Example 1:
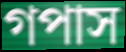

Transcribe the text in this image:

গপাস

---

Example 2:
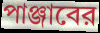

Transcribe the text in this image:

পাঞ্জাবের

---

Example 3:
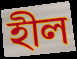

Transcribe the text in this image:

হীল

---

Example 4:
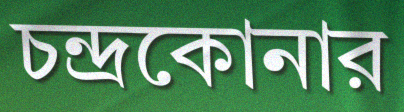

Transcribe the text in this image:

চন্দ্রকোনার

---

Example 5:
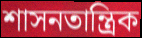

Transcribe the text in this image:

শাসনতান্ত্রিক